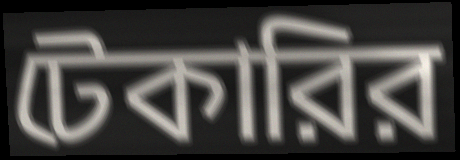
টেকারির